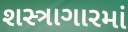
શસ્ત્રાગારમાં